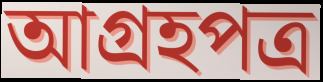
আগ্রহপত্র